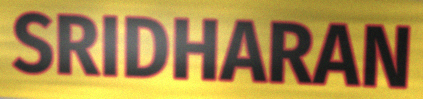
SRIDHARAN